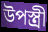
উপস্ত্রী